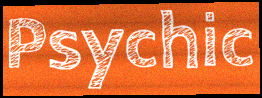
Psychic